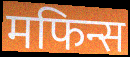
मफिन्स